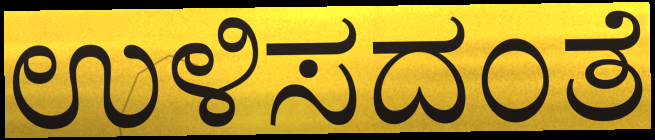
ಉಳಿಸದಂತೆ